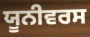
ਯੂਨੀਵਰਸ